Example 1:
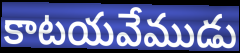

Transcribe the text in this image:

కాటయవేముడు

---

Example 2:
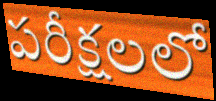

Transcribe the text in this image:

పరీక్షలలో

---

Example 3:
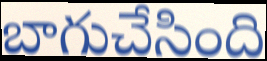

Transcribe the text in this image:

బాగుచేసింది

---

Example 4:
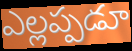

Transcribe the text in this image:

ఎల్లప్పడూ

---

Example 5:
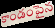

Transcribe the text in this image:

కాండంపైన